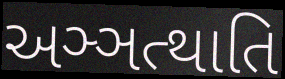
અઞ્ઞત્થાતિ